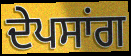
ਦੇਪਸਾਂਗ